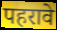
पहरावे